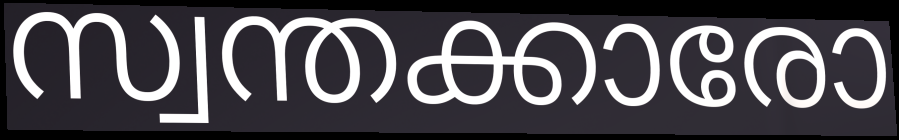
സ്വന്തക്കാരോ